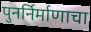
पुनर्निर्माणाचा